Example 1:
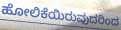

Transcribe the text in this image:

ಹೋಲಿಕೆಯಿರುವುದರಿಂದ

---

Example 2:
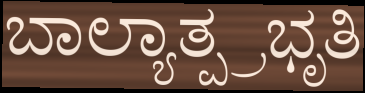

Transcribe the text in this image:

ಬಾಲ್ಯಾತ್ಪ್ರಭೃತಿ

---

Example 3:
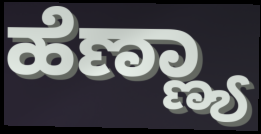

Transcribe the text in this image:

ಹೆಣ್ಣ್ಯಾ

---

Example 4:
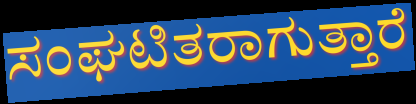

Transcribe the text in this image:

ಸಂಘಟಿತರಾಗುತ್ತಾರೆ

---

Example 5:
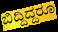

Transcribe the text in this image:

ಬಿದ್ದಿದ್ದರೂ